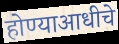
होण्याआधीचे